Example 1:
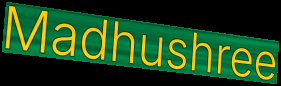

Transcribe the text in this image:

Madhushree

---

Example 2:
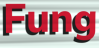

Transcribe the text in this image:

Fung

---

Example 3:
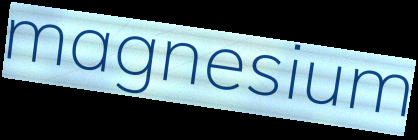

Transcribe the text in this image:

magnesium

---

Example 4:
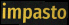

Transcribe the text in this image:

impasto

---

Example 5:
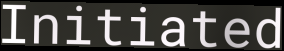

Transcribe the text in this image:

Initiated